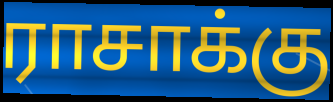
ராசாக்கு